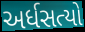
અર્ધસત્યો